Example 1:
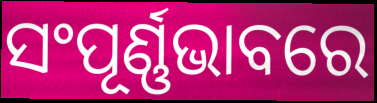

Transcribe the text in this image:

ସଂପୂର୍ଣ୍ଣଭାବରେ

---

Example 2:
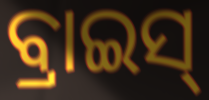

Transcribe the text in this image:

ବ୍ରାଇସ୍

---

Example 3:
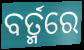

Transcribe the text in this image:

ବର୍ତ୍ମରେ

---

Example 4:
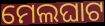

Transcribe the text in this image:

ମେଲଘାଟ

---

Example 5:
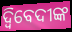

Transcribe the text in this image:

ଦ୍ବିବେଦୀଙ୍କ